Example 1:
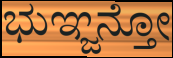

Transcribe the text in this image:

ಭುಞ್ಜನ್ತೋ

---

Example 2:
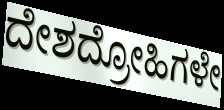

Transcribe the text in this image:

ದೇಶದ್ರೋಹಿಗಳೇ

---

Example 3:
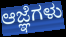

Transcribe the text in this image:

ಆಜ್ಞೆಗಳು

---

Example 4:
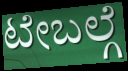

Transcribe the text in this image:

ಟೇಬಲ್ಗೆ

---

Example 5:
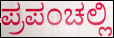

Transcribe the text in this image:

ಪ್ರಪಂಚಲ್ಲಿ